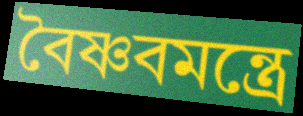
বৈষ্ণবমন্ত্রে